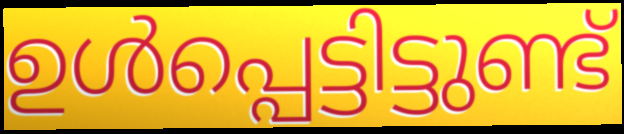
ഉൾപ്പെട്ടിട്ടുണ്ട്